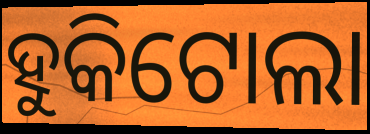
ହୁକିଟୋଲା